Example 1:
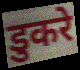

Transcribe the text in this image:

डुकरे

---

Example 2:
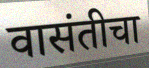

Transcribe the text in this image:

वासंतीचा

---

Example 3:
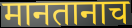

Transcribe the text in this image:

मानतानाच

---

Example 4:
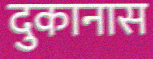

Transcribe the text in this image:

दुकानास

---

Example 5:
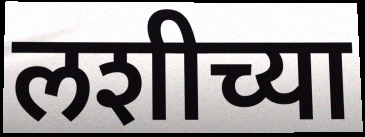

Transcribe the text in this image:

लशीच्या